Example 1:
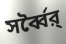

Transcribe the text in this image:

সর্ব্বৈর্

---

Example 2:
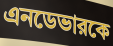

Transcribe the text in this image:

এনডেভারকে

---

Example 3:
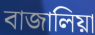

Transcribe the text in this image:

বাজালিয়া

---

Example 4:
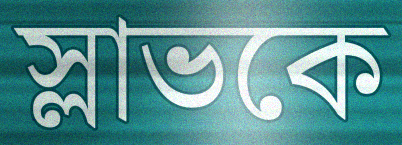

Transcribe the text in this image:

স্লাভকে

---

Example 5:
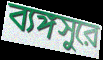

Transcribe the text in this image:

ব্যঙ্গসুরে